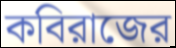
কবিরাজের